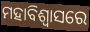
ମହାବିଶ୍ୱାସରେ